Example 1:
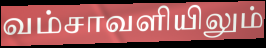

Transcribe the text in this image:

வம்சாவளியிலும்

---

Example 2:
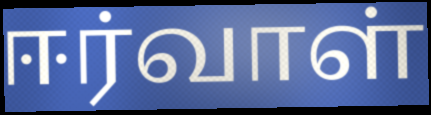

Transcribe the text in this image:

ஈர்வாள்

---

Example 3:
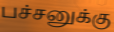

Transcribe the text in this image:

பச்சனுக்கு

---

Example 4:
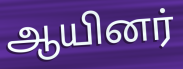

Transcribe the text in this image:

ஆயினர்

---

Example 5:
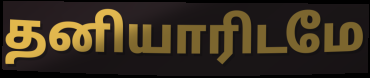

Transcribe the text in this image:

தனியாரிடமே